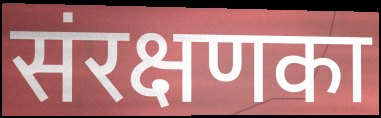
संरक्षणका